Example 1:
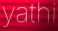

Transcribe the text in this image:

yathi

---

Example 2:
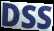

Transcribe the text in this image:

DSS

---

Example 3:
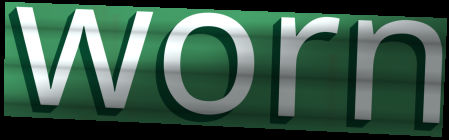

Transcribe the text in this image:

worn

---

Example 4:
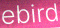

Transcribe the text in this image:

ebird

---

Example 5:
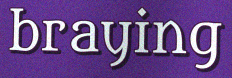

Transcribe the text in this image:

braying